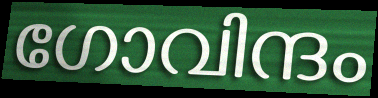
ഗോവിന്ദം